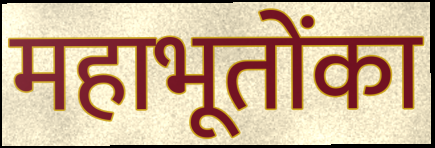
महाभूतोंका